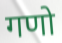
गणो